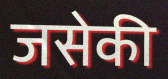
जसेकी